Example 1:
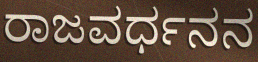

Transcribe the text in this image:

ರಾಜವರ್ಧನನ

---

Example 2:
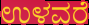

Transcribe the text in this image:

ಉಳವರೆ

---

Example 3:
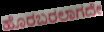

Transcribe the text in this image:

ಹೊರಬರಲಾಗದೇ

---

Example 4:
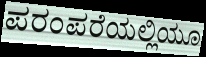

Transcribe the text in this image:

ಪರಂಪರೆಯಲ್ಲಿಯೂ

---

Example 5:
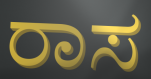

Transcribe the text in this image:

ರಾಸ